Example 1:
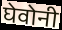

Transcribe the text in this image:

घेवोनी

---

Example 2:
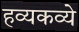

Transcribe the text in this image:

हव्यकव्ये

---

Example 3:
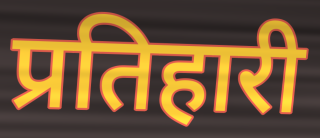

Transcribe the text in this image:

प्रतिहारी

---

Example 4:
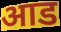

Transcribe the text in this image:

आड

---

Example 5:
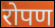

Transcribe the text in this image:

रोपण